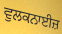
ਵੁਲਕਨਾਈਜ਼